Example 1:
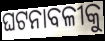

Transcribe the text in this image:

ଘଟନାବଳୀକୁ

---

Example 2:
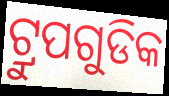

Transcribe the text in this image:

ଟ୍ରୁପଗୁଡିକ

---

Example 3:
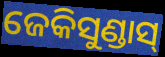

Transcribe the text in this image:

ଜେକିସୁଣ୍ଡାସ୍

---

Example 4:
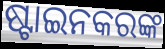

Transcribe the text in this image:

ଷ୍ଟାଇନକରଙ୍କ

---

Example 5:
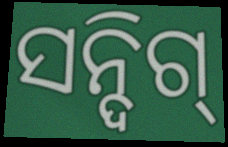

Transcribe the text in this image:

ସନ୍ଦିଗ୍